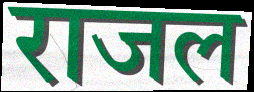
राजल